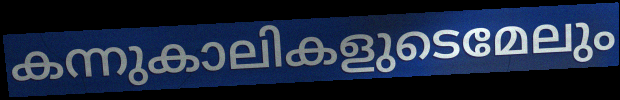
കന്നുകാലികളുടെമേലും